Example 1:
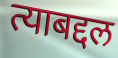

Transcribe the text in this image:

त्याबद्दल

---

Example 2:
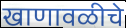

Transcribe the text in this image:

खाणावळीचे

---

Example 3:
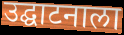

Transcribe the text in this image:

उद्घाटनाला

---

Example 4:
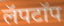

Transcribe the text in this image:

लॅपटॉप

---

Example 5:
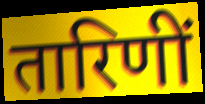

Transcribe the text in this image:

तारिणीं